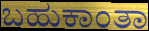
ಬಹುಕಾಂತಾ